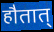
हौतात्